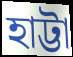
হাট্টা